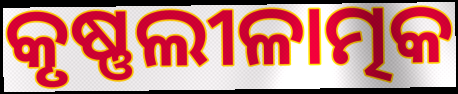
କୃଷ୍ଣଲୀଳାତ୍ମକ